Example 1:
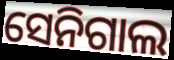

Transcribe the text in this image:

ସେନିଗାଲ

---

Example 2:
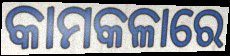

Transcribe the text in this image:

କାମକଳାରେ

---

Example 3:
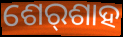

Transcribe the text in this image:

ଶେର୍‌ଶାହ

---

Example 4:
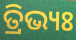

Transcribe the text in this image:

ତ୍ରିଭ୍ୟଃ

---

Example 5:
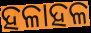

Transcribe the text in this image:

ହଳାହଳ